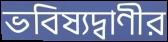
ভবিষ্যদ্বাণীর